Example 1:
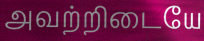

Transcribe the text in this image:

அவற்றிடையே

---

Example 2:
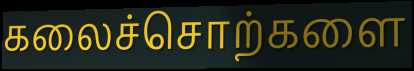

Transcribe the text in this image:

கலைச்சொற்களை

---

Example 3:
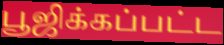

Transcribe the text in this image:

பூஜிக்கப்பட்ட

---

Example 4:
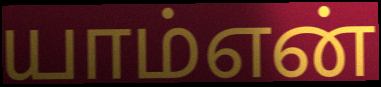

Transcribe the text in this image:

யாம்என்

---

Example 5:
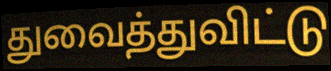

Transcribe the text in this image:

துவைத்துவிட்டு